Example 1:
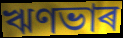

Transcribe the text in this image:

ঋণভাৰ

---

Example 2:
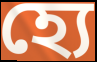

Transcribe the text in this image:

হ্যে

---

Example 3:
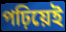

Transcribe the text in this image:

পঢ়িয়েই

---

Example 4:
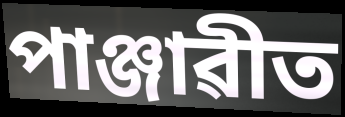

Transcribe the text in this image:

পাঞ্জাৱীত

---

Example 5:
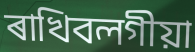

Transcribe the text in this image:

ৰাখিবলগীয়া